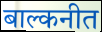
बाल्कनीत